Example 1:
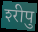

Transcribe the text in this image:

श्रीपु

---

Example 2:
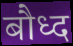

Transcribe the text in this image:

बौध्द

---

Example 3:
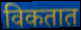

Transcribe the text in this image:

विकतात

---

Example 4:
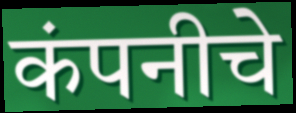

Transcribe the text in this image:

कंपनीचे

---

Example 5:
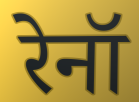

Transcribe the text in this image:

रेनॉ